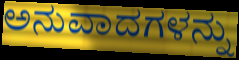
ಅನುವಾದಗಳನ್ನು